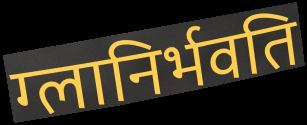
ग्लानिर्भवति